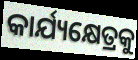
କାର୍ଯ୍ୟକ୍ଷେତ୍ରକୁ